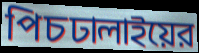
পিচঢালাইয়ের